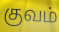
குவம்